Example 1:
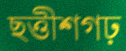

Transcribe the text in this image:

ছত্তীশগঢ়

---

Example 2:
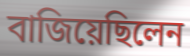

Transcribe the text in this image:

বাজিয়েছিলেন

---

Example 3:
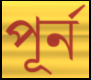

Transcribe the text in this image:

পূর্ন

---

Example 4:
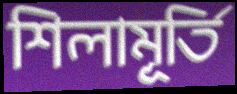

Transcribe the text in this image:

শিলামূর্তি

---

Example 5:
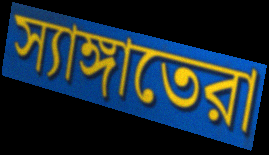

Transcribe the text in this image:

স্যাঙ্গাতেরা